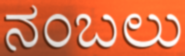
ನಂಬಲು